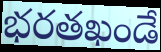
భరతఖండే